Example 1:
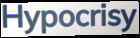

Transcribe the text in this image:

Hypocrisy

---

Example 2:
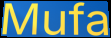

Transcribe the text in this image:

Mufa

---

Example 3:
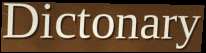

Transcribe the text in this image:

Dictonary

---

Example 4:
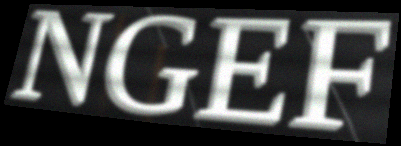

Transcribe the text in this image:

NGEF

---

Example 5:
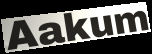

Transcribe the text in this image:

Aakum